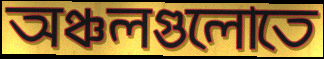
অঞ্চলগুলোতে